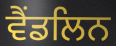
ਵੈਂਡਲਿਨ